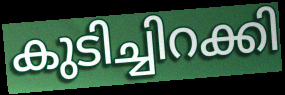
കുടിച്ചിറക്കി